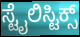
ಸ್ಟೈಲಿಸ್ಟಿಕ್ಸ್